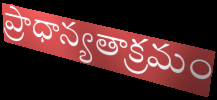
ప్రాధాన్యతాక్రమం